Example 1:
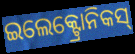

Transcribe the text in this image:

ଇଲେକ୍ଟ୍ରୋନିକସ୍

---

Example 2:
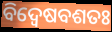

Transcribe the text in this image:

ବିଦ୍ୱେଷବଶତଃ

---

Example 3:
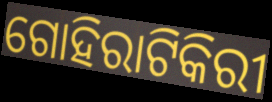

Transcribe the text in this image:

ଗୋହିରାଟିକିରୀ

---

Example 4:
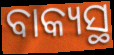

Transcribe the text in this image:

ବାକ୍ୟସ୍ଥ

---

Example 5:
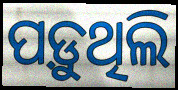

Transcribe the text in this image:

ପଡ଼ୁଥିଲି